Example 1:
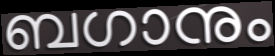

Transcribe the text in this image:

ബഗാനും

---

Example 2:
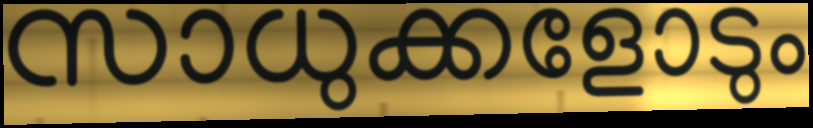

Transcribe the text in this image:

സാധുക്കളോടും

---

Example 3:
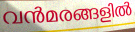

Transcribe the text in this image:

വൻമരങ്ങളിൽ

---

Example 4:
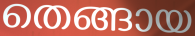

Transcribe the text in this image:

തെങ്ങായ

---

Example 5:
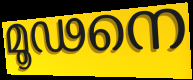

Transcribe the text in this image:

മൂഢനെ